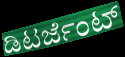
ಡಿಟರ್ಜೆಂಟ್